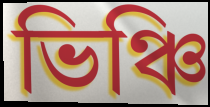
ভিঞ্চি